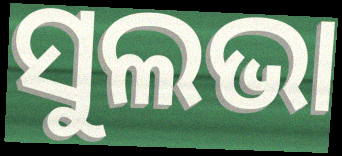
ସୁଲଭା